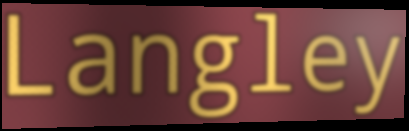
Langley